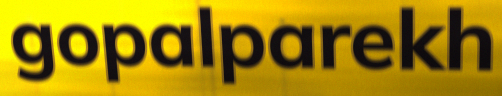
gopalparekh